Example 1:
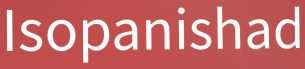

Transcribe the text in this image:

Isopanishad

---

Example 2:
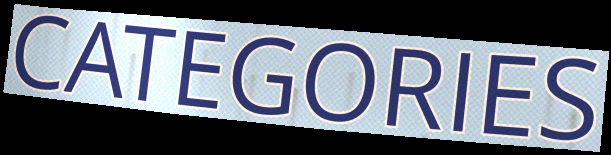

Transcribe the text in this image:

CATEGORIES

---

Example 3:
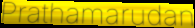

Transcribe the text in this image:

Prathamarudan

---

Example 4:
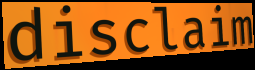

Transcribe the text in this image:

disclaim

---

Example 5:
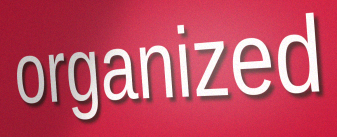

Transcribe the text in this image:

organized